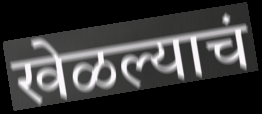
खेळल्याचं